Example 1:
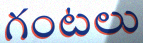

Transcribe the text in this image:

గంటలు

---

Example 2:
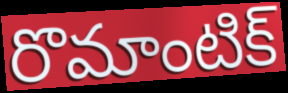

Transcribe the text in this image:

రొమాంటిక్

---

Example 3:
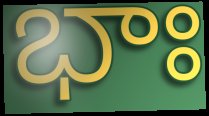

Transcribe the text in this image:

భాః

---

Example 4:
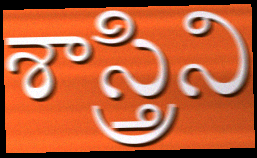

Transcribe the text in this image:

శాస్త్రిని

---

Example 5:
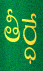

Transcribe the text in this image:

తీర్ధే